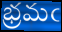
భ్రమఁ